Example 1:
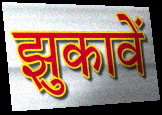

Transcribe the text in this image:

झुकावें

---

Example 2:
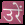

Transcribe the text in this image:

उरें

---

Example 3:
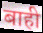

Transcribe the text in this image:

बाही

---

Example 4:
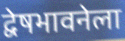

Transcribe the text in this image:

द्वेषभावनेला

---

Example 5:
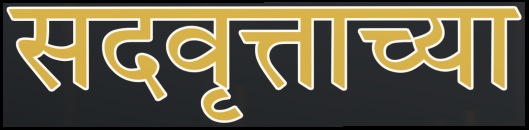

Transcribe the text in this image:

सदवृत्ताच्या